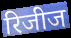
रिजीज